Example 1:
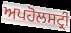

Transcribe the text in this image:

ਅਪਹੋਲਸਟ੍ਰੀ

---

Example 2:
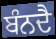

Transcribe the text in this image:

ਬੰਨਦੈ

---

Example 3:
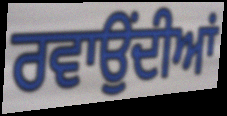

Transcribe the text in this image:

ਰਵਾਉਂਦੀਆਂ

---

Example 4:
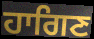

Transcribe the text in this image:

ਹਾਗਿਣ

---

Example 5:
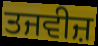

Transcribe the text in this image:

ਤਜਵੀਜ਼